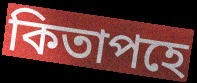
কিতাপহে